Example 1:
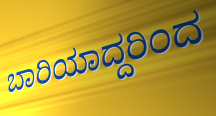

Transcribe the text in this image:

ಬಾರಿಯಾದ್ದರಿಂದ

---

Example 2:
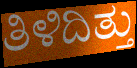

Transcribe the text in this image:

ತಿಳಿದಿತ್ತು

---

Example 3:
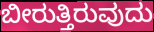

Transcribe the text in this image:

ಬೀರುತ್ತಿರುವುದು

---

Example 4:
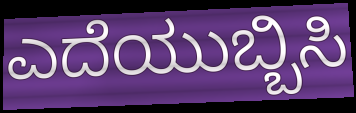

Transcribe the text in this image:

ಎದೆಯುಬ್ಬಿಸಿ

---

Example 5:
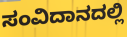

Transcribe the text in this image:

ಸಂವಿದಾನದಲ್ಲಿ